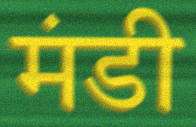
मंडी